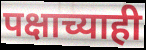
पक्षाच्याही